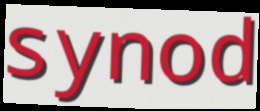
synod